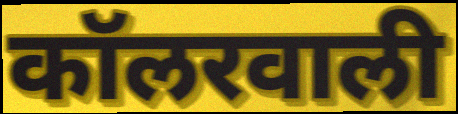
कॉलरवाली